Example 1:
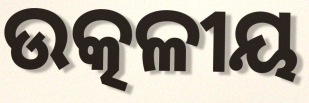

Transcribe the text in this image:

ଉତ୍କଳୀୟ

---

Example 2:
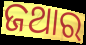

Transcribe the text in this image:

ଜଥାର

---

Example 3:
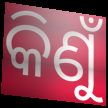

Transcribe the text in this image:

କିଣୁଁ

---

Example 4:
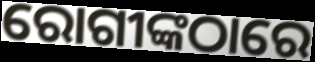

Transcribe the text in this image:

ରୋଗୀଙ୍କଠାରେ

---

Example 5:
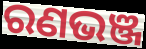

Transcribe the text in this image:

ରଣଭଞ୍ଜ